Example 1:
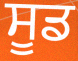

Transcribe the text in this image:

ਸੂਡ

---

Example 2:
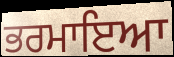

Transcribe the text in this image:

ਭਰਮਾਇਆ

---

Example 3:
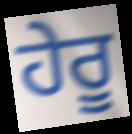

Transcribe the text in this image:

ਹੇਰੂ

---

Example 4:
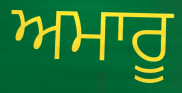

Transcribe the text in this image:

ਅਮਾਰੂ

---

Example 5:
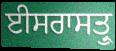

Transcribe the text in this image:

ਈਸਰਾਸਤ੍ਰੁ